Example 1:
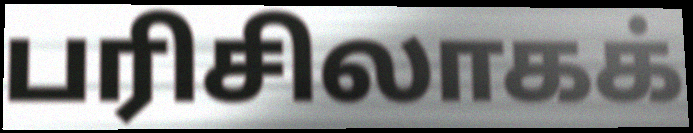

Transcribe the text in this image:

பரிசிலாகக்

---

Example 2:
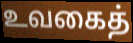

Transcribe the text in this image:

உவகைத்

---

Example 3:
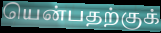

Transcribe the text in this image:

யென்பதற்குக்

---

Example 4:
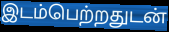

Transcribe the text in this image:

இடம்பெற்றதுடன்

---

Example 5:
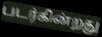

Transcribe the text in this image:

படர்கின்றது